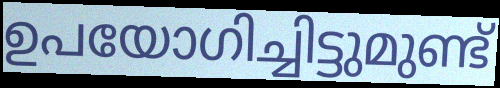
ഉപയോഗിച്ചിട്ടുമുണ്ട്